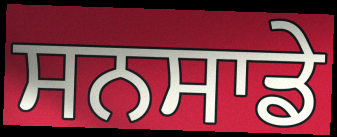
ਸਨਸਾਡੇ